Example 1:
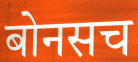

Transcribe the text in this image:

बोनसच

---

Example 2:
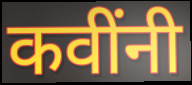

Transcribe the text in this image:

कवींनी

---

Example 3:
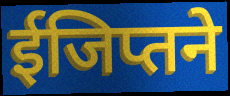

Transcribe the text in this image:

ईजिप्तने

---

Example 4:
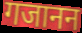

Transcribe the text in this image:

गजानन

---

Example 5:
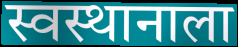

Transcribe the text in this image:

स्वस्थानाला